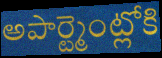
అపార్ట్మెంట్లోకి